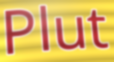
Plut